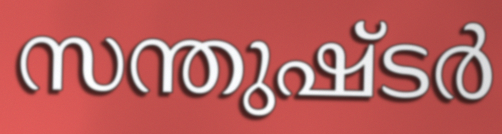
സന്തുഷ്ടർ